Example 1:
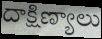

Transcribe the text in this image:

దాక్షిణ్యాలు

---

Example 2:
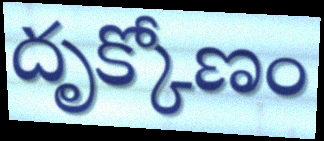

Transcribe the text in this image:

దృక్కోణం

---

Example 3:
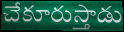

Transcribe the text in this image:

చేకూరుస్తాడు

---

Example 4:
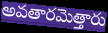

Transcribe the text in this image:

అవతారమెత్తారు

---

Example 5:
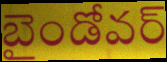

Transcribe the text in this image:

బైండోవర్